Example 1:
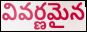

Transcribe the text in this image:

వివర్ణమైన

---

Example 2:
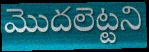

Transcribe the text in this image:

మొదలెట్టని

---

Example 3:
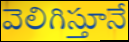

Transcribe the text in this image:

వెలిగిస్తూనే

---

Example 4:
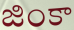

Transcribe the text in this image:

జింకా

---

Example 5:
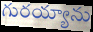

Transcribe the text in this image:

గురయ్యాను